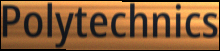
Polytechnics